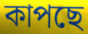
কাপছে